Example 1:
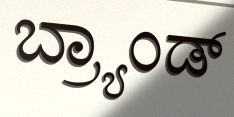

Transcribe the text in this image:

ಬ್ರ್ಯಾಂಡ್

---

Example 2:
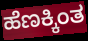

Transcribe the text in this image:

ಹೆಣಕ್ಕಿಂತ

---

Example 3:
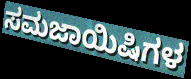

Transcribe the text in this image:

ಸಮಜಾಯಿಷಿಗಳ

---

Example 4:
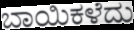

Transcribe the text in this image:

ಬಾಯಿಕಳೆದು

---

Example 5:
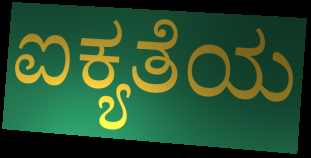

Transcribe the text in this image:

ಐಕ್ಯತೆಯ